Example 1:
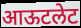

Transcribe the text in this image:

आऊटलेट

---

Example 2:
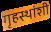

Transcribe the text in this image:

गृहस्थांशी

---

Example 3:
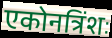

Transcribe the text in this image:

एकोनत्रिंशः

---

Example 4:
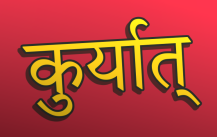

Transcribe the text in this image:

कुर्यात्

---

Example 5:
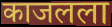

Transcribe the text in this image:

काजलला